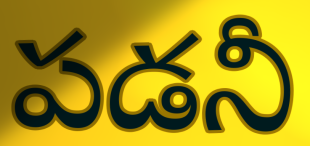
పడనీ